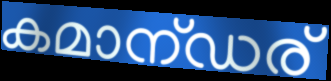
കമാന്ഡര്